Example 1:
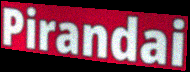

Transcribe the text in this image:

Pirandai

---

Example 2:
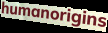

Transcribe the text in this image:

humanorigins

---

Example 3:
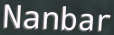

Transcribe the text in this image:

Nanbar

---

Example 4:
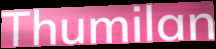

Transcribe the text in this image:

Thumilan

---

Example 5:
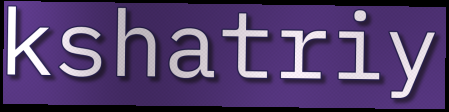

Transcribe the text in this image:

kshatriy